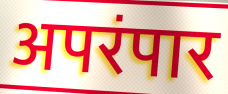
अपरंपार